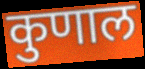
कुणाल